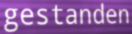
gestanden